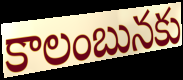
కాలంబునకు